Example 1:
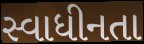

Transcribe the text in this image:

સ્વાધીનતા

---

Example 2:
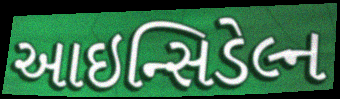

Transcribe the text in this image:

આઇન્સિડેલ્ન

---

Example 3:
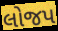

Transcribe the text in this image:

લોજપ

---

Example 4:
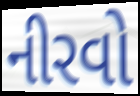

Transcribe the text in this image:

નીરવો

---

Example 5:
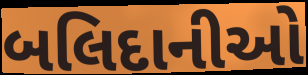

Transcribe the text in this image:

બલિદાનીઓ